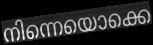
നിന്നെയൊക്കെ